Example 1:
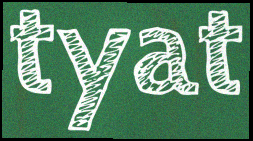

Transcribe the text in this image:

tyat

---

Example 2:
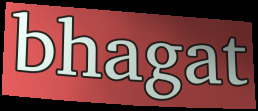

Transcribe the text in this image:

bhagat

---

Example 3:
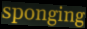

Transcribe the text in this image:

sponging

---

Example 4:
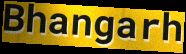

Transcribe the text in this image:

Bhangarh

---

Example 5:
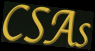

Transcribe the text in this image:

CSAs